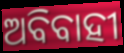
ଅବିବାହୀ